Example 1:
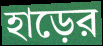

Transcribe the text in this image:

হাড়ের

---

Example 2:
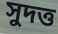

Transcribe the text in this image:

সুদত্ত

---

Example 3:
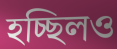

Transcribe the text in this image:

হচ্ছিলও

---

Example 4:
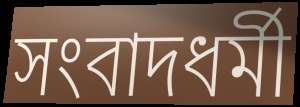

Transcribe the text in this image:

সংবাদধর্মী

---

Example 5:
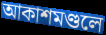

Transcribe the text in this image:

আকাশমণ্ডলে